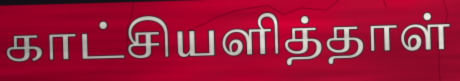
காட்சியளித்தாள்